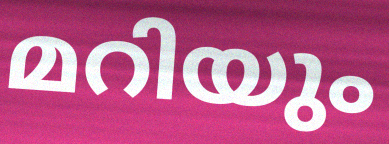
മറിയും